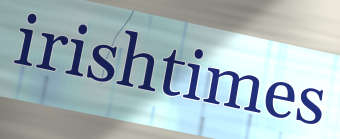
irishtimes